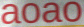
aoao